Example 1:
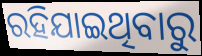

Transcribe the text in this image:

ରହିଯାଇଥିବାରୁ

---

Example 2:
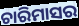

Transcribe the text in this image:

ଚାରିମାସର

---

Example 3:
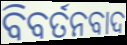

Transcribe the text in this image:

ବିବର୍ତନବାଦ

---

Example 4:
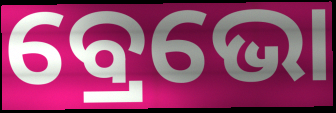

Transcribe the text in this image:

ବ୍ରେଭୋ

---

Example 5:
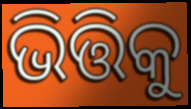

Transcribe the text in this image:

ଭିତ୍ତିକୁ